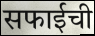
सफाईची